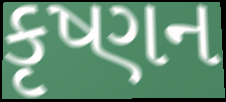
કૃષ્ણન